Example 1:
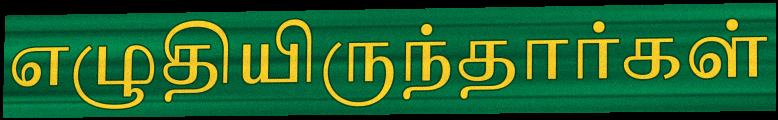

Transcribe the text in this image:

எழுதியிருந்தார்கள்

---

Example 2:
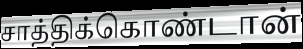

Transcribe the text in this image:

சாத்திக்கொண்டான்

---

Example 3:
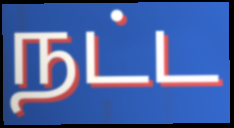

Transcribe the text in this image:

நட்ட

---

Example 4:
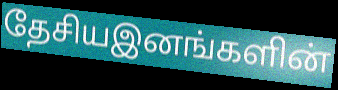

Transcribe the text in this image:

தேசியஇனங்களின்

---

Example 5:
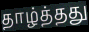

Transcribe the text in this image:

தாழ்த்தது